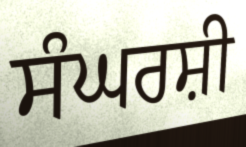
ਸੰਘਰਸ਼ੀ